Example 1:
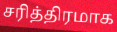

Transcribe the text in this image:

சரித்திரமாக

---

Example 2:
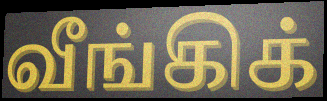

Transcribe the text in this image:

வீங்கிக்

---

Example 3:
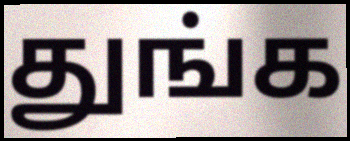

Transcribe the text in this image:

துங்க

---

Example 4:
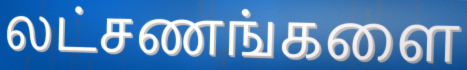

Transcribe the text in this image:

லட்சணங்களை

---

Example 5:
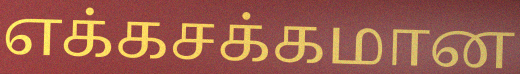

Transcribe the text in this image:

எக்கசக்கமான